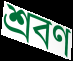
শ্রবণ